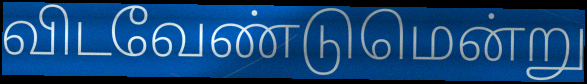
விடவேண்டுமென்று